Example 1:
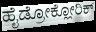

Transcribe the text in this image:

ಹೈಡ್ರೋಕ್ಲೋರಿಕ್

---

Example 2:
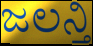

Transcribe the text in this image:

ಜಲನ್ತಿ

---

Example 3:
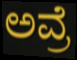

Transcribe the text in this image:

ಅವ್ರೆ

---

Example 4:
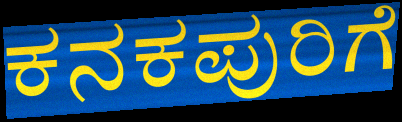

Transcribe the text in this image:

ಕನಕಪುರಿಗೆ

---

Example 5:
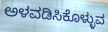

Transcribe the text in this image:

ಅಳವಡಿಸಿಕೊಳ್ಳುವ